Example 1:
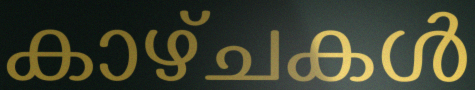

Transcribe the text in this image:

കാഴ്‌ചകൾ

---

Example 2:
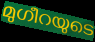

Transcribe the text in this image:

മുഗീറയുടെ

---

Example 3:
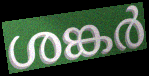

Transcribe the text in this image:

ശങ്കർ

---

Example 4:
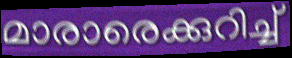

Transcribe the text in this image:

മാരാരെക്കുറിച്ച്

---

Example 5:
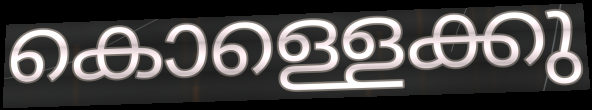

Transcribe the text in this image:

കൊള്ളെക്കു